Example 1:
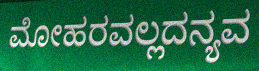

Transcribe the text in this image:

ಮೋಹರವಲ್ಲದನ್ಯವ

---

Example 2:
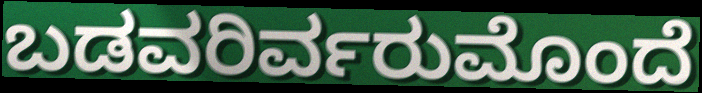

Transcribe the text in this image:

ಬಡವರಿರ್ವರುಮೊಂದೆ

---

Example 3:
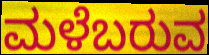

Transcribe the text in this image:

ಮಳೆಬರುವ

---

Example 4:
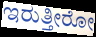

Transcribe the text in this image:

ಇರುತ್ತೀರೋ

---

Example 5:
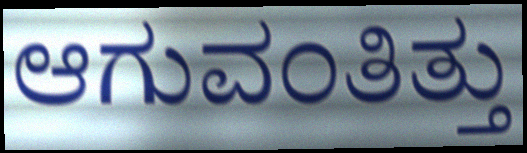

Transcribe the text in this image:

ಆಗುವಂತಿತ್ತು